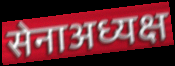
सेनाअध्यक्ष